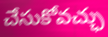
చేసుకోవచ్ఛు